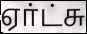
ஏர்ட்சு